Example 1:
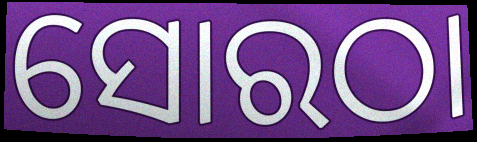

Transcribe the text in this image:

ସୋରଠା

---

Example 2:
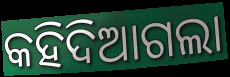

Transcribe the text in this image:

କହିଦିଆଗଲା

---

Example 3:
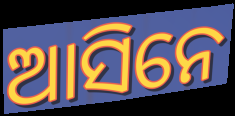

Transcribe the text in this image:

ଆସିନେ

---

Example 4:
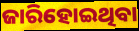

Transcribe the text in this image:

ଜାରିହୋଇଥିବା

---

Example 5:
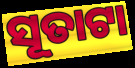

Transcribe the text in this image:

ସୂତାଟା